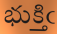
భుక్తిఁ